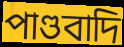
পাণ্ডবাদি